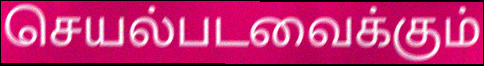
செயல்படவைக்கும்